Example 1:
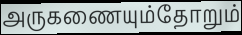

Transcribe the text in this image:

அருகணையும்தோறும்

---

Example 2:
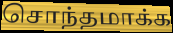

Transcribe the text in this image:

சொந்தமாக்க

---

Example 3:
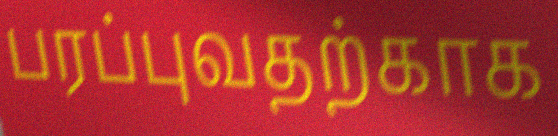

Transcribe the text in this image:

பரப்புவதற்காக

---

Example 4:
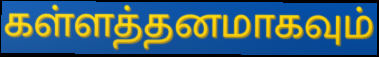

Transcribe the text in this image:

கள்ளத்தனமாகவும்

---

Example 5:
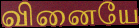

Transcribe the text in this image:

வினையே